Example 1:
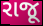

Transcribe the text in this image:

રાજૂ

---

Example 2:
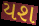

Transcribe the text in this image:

યશ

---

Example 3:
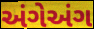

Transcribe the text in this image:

અંગેઅંગ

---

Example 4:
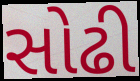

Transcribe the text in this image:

સોઢી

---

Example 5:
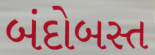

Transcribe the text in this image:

બંદોબસ્ત